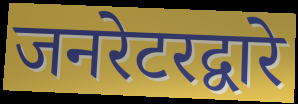
जनरेटरद्वारे